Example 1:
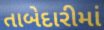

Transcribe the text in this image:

તાબેદારીમાં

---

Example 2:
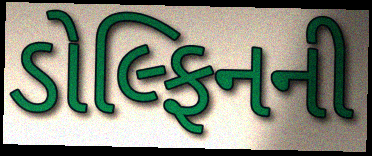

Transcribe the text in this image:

ડોલ્ફિનની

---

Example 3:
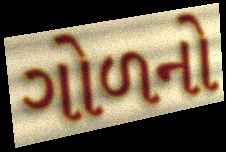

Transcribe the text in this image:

ગોળનો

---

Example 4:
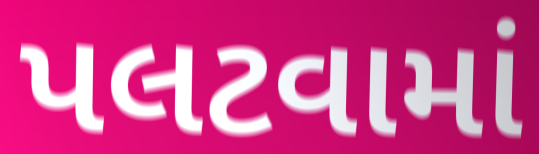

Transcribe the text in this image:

પલટવામાં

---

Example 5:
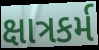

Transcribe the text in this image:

ક્ષાત્રકર્મ